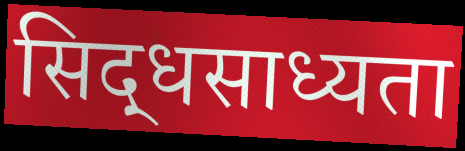
सिद्धसाध्यता